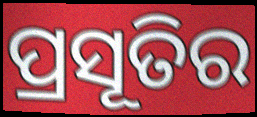
ପ୍ରସୂତିର